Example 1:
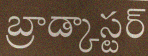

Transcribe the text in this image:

బ్రాడ్కాస్టర్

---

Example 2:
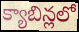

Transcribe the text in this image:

క్యాబిన్లలో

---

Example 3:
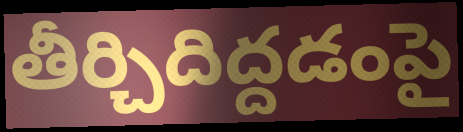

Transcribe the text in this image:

తీర్చిదిద్దడంపై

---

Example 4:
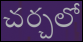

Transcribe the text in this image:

చర్చలో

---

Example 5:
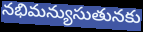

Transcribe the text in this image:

నభిమన్యుసుతునకు